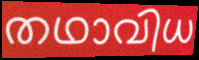
തഥാവിധ